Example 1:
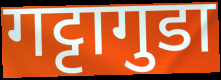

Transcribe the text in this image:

गट्टागुडा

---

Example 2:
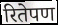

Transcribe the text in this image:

रितेपण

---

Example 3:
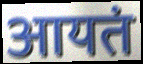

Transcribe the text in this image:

आयतं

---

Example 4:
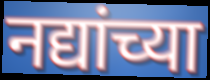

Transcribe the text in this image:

नद्यांच्या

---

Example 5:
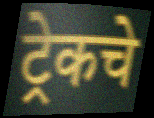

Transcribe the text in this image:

ट्रेकचे